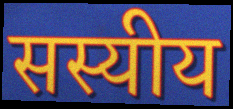
सस्यीय